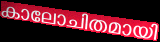
കാലോചിതമായി